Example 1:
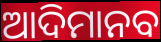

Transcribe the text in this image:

ଆଦିମାନବ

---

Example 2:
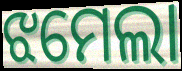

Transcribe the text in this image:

ଝମେଲା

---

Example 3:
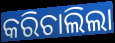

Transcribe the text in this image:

କରିଚାଲିଲା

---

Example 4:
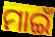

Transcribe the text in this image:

ମାଇଁ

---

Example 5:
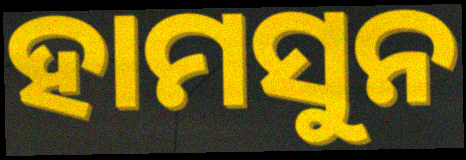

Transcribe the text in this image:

ହାମସୁନ